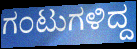
ಗಂಟುಗಳಿದ್ದ